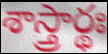
శాస్త్రార్థః